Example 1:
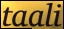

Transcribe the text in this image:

taali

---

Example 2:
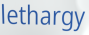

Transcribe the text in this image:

lethargy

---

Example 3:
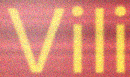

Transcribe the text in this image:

Vili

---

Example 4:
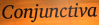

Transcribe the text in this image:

Conjunctiva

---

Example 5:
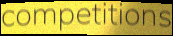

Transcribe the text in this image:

competitions